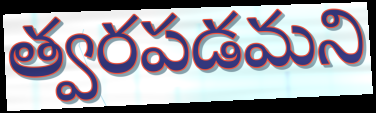
త్వరపడమని